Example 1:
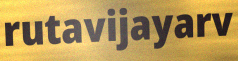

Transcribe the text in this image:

rutavijayarv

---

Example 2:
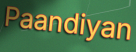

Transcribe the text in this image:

Paandiyan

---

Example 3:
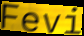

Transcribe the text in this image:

Fevi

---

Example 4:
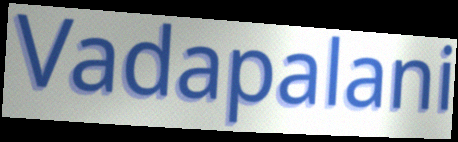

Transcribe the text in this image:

Vadapalani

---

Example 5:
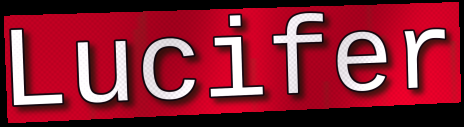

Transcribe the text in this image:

Lucifer